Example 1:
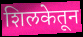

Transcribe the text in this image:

शिलकेतून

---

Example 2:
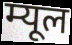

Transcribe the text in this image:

म्यूल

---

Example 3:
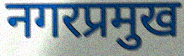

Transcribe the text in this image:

नगरप्रमुख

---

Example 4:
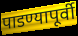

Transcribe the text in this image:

पाडण्यापूर्वी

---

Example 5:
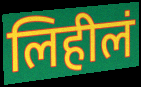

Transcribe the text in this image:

लिहीलं